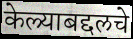
केल्याबद्दलचे